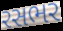
રસભર